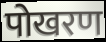
पोखरण